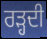
ਰੜ੍ਹਦੀ